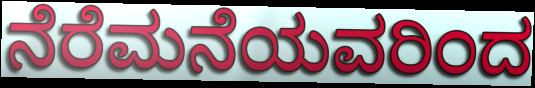
ನೆರೆಮನೆಯವರಿಂದ